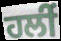
ਹਲੀਂ